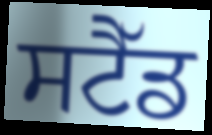
ਸਟੈੱਡ